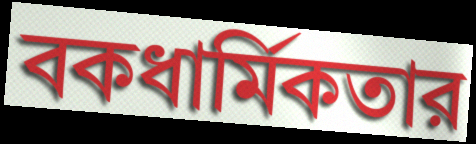
বকধার্মিকতার